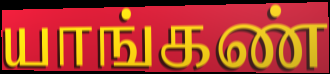
யாங்கண்